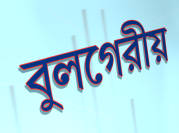
বুলগেরীয়